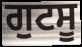
ਗੁਟਸੂ